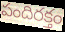
పందిరక్తం